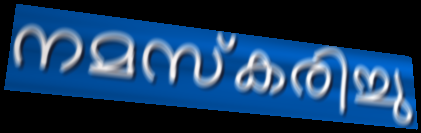
നമസ്കരിച്ചു